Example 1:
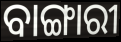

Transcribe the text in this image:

ବାଙ୍ଗାରୀ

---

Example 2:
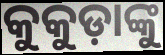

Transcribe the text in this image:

କୁକୁଡ଼ାଙ୍କୁ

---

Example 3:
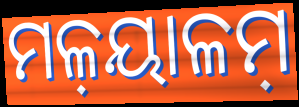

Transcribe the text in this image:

ମଳ଼ୟାଳମ଼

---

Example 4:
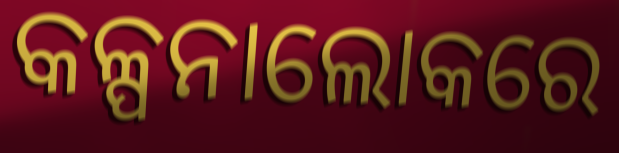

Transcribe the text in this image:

କଳ୍ପନାଲୋକରେ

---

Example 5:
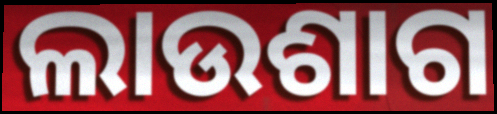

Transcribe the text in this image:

ଲାଉଶାଗ